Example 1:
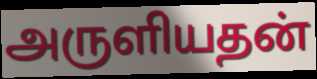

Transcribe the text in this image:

அருளியதன்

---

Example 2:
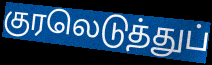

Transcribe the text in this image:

குரலெடுத்துப்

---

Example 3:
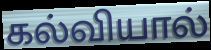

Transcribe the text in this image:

கல்வியால்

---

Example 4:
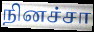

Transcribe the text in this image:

நினச்சா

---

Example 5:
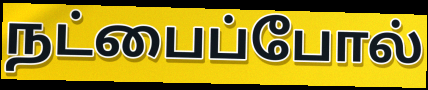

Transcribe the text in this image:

நட்பைப்போல்